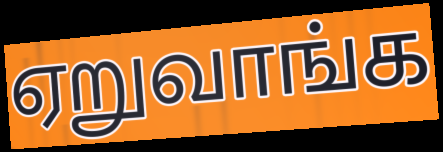
ஏறுவாங்க